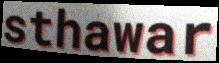
sthawar